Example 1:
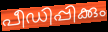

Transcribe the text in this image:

പീഡിപ്പിക്കും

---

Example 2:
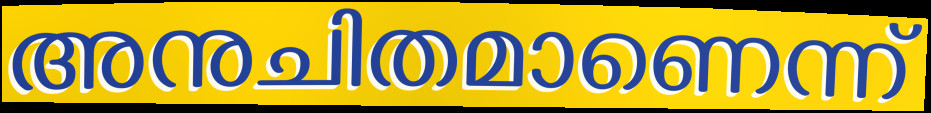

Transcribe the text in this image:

അനുചിതമാണെന്ന്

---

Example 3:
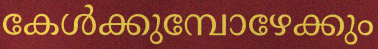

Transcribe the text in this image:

കേൾക്കുമ്പോഴേക്കും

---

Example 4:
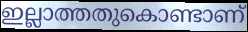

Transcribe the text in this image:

ഇല്ലാത്തതുകൊണ്ടാണ്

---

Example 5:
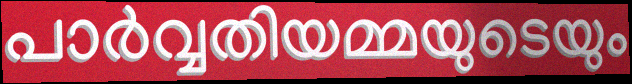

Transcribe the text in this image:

പാർവ്വതിയമ്മയുടെയും